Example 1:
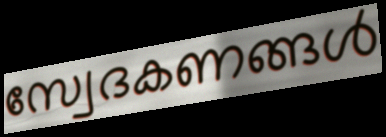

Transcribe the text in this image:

സ്വേദകണങ്ങൾ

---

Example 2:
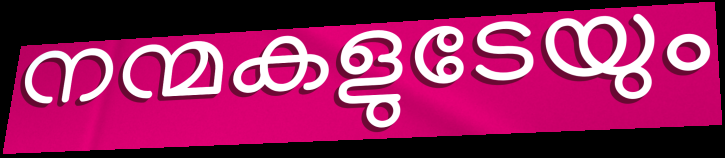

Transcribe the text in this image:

നന്മകളുടേയും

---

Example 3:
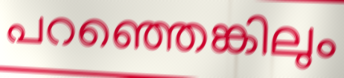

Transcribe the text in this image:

പറഞ്ഞെങ്കിലും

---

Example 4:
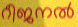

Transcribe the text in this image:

റീജനൽ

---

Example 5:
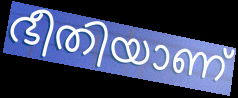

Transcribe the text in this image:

ഭീതിയാണ്